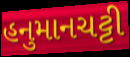
હનુમાનચટ્ટી